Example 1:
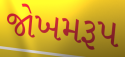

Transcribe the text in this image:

જોખમરૂપ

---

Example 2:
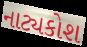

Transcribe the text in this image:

નાટ્યકોશ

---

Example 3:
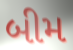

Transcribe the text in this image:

બીમ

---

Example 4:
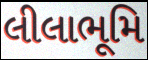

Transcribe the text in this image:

લીલાભૂમિ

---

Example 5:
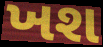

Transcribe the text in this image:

ખશ